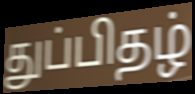
துப்பிதழ்